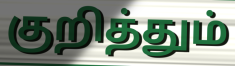
குறித்தும்